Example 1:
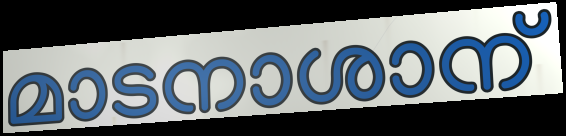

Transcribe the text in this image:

മാടനാശാന്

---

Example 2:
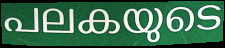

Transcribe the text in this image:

പലകയുടെ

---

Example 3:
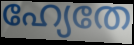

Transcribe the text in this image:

ഹ്യേതേ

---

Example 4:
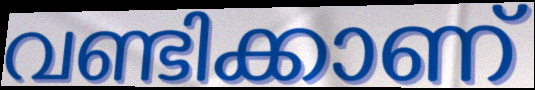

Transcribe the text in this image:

വണ്ടിക്കാണ്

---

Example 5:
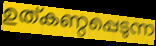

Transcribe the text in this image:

ഉത്കണ്ഠപ്പെടുന്ന